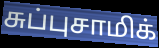
சுப்புசாமிக்